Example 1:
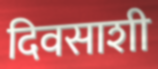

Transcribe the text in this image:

दिवसाशी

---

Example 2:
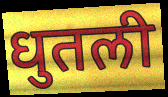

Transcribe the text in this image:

धुतली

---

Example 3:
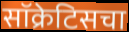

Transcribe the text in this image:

सॉक्रेटिसचा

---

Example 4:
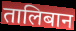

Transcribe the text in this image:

तालिबान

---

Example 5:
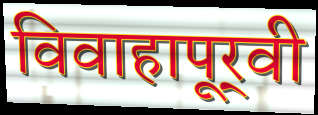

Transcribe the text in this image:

विवाहापूर्वी